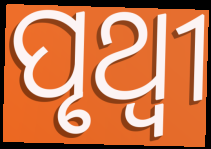
ପୃଥ୍ଵୀ